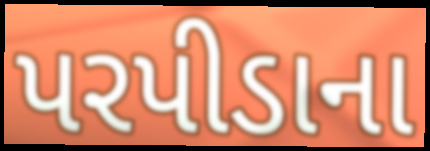
પરપીડાના